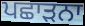
ਪਛਾੜਨਾ